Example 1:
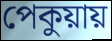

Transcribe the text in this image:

পেকুয়ায়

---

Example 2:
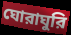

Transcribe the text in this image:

ঘোরাঘুরি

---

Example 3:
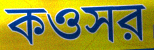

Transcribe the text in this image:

কওসর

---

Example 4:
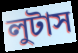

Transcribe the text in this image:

লুটাস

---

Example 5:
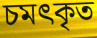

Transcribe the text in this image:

চমৎকৃত